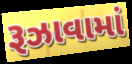
રૂઝાવામાં